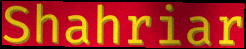
Shahriar